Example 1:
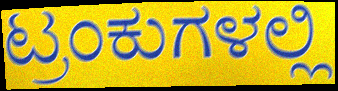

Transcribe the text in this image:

ಟ್ರಂಕುಗಳಲ್ಲಿ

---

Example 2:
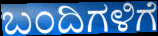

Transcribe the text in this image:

ಬಂದಿಗಳಿಗೆ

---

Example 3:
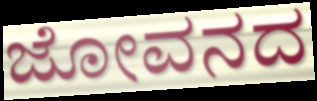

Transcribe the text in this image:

ಜೋವನದ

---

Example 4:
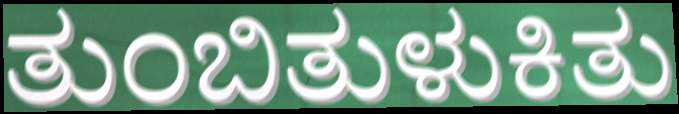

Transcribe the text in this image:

ತುಂಬಿತುಳುಕಿತು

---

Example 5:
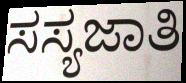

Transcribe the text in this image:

ಸಸ್ಯಜಾತಿ